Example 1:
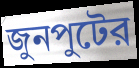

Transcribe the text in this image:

জুনপুটের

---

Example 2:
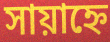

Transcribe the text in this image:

সায়াহ্নে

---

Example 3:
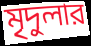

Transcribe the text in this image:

মৃদুলার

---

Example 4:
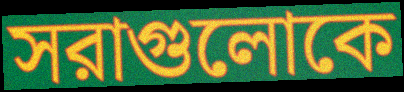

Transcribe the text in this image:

সরাগুলোকে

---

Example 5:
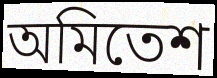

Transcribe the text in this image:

অমিতেশ